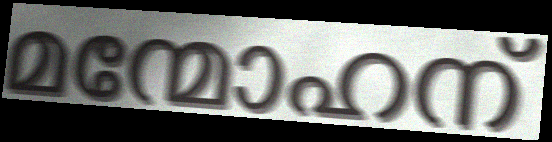
മന്മോഹന്